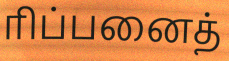
ரிப்பனைத்